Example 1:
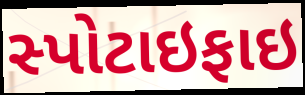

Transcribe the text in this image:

સ્પોટાઇફાઇ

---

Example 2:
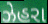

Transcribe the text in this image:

ઝેહરા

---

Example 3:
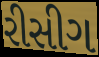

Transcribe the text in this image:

રીસીગ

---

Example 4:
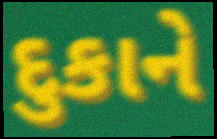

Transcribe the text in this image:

દુકાને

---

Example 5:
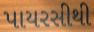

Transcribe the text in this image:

પાયરસીથી